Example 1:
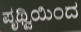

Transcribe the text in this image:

ಪೃಥ್ವಿಯಿಂದ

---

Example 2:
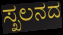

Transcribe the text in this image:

ಸ್ಖಲನದ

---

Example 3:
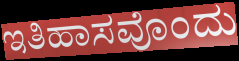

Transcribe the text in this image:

ಇತಿಹಾಸವೊಂದು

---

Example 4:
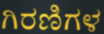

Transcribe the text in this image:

ಗಿರಣಿಗಳ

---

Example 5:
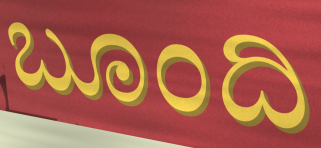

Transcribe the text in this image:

ಬೂಂದಿ